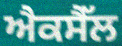
ਐਕਸੈੱਲ